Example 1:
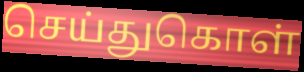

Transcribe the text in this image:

செய்துகொள்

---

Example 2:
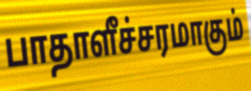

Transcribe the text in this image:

பாதாளீச்சரமாகும்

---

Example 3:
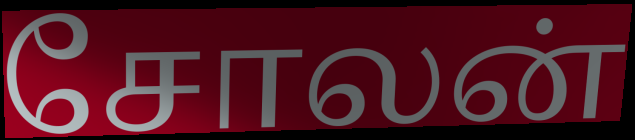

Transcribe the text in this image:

சோலன்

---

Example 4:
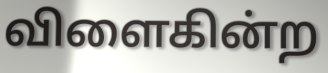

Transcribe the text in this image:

விளைகின்ற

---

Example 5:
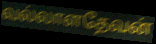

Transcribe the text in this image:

வல்லாளதேவன்